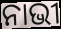
ନାଭୀ